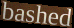
bashed